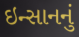
ઇન્સાનનું